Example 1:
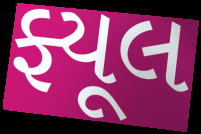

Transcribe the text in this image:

ફ્યૂલ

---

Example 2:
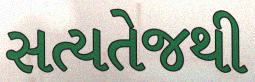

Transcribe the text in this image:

સત્યતેજથી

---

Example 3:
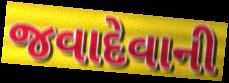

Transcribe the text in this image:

જવાદેવાની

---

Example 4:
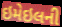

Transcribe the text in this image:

ઇમેઇલની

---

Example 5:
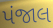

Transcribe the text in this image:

પંજાલ